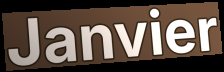
Janvier